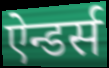
ऐन्डर्स